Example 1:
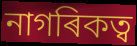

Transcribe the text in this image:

নাগৰিকত্ব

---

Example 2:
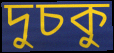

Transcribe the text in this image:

দুচকু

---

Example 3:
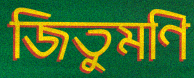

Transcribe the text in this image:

জিতুমণি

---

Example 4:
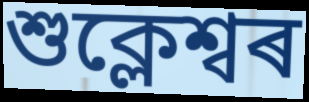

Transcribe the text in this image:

শুক্লেশ্বৰ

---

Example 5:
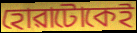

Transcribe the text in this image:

হোৱাটোকেই